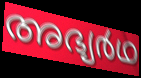
അഭ്യർഥ